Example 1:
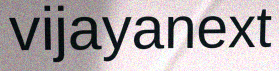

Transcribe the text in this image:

vijayanext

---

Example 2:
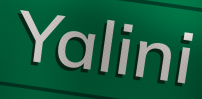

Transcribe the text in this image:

Yalini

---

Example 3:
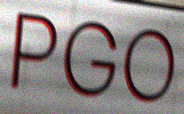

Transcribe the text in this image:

PGO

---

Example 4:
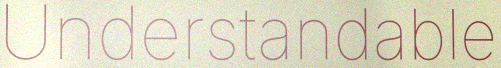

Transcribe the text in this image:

Understandable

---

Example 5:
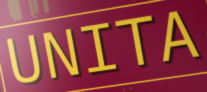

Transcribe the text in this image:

UNITA